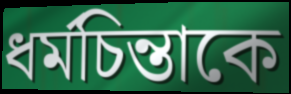
ধর্মচিন্তাকে